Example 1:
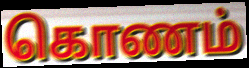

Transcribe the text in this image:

கொணம்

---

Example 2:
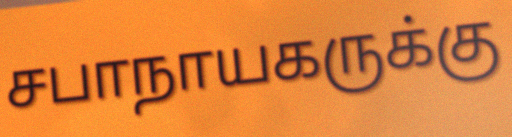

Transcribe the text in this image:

சபாநாயகருக்கு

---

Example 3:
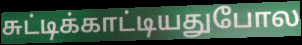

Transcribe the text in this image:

சுட்டிக்காட்டியதுபோல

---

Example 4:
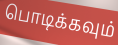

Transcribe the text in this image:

பொடிக்கவும்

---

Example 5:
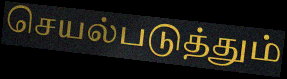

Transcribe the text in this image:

செயல்படுத்தும்